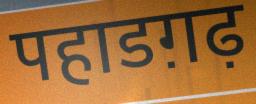
पहाडग़ढ़